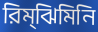
রিম্‌ঝিমিনি